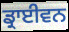
ਡ੍ਰਾਈਵਨ